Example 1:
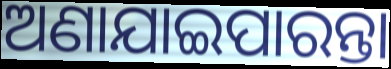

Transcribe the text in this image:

ଅଣାଯାଇପାରନ୍ତା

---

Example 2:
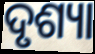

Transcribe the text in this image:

ଦୃଶ୍ୟା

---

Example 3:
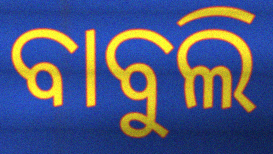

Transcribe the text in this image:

ବାବୁଲି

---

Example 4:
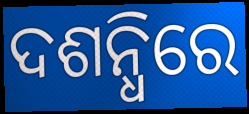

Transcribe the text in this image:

ଦଶନ୍ଧିରେ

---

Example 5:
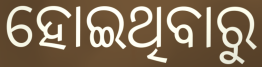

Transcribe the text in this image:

ହୋଇଥିବାରୁ